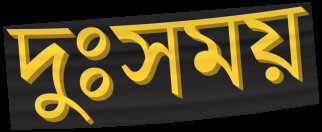
দুঃসময়